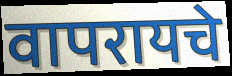
वापरायचे